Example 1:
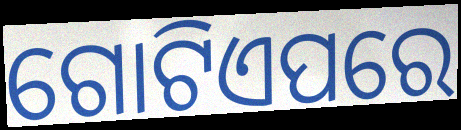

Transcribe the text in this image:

ଗୋଟିଏପରେ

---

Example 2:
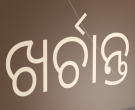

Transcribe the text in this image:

ଖର୍ଚାନ୍ତ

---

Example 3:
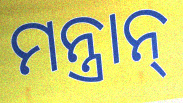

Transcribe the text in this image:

ମନ୍ତ୍ରାନ୍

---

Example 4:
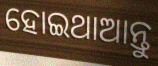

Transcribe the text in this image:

ହୋଇଥାଆନ୍ତୁ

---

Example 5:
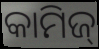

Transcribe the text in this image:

କାମିଜ୍